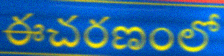
ఈచరణంలో